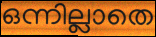
ഒന്നില്ലാതെ